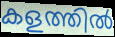
കളത്തിൽ